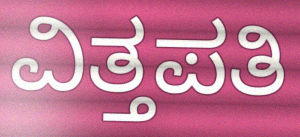
ವಿತ್ತಪತಿ